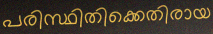
പരിസ്ഥിതിക്കെതിരായ